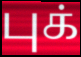
புக்